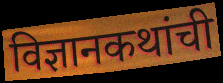
विज्ञानकथांची